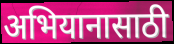
अभियानासाठी